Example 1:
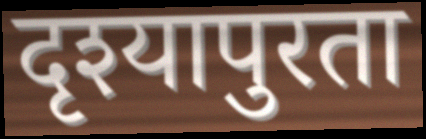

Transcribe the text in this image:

दृश्यापुरता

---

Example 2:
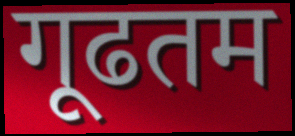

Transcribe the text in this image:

गूढतम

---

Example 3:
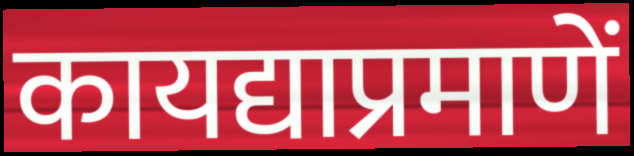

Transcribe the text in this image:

कायद्याप्रमाणें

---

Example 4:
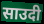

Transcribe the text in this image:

साउदी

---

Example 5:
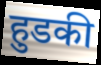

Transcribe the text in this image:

हुडकी